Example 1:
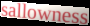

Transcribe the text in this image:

sallowness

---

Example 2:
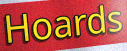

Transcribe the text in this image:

Hoards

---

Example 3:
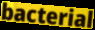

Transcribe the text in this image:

bacterial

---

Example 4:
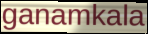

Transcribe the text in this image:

ganamkala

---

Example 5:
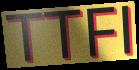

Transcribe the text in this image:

TTFI